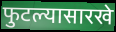
फुटल्यासारखे